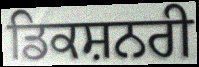
ਡਿਕਸ਼ਨਰੀ